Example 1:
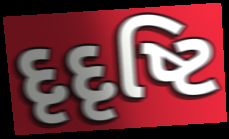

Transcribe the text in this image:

દૃદૃષ્ટિ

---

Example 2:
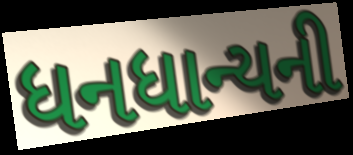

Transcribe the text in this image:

ધનધાન્યની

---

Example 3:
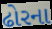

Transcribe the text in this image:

ઢોરના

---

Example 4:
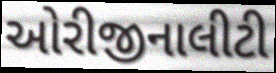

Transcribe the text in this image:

ઓરીજીનાલીટી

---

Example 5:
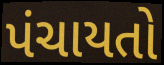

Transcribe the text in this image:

પંચાયતો